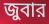
জুবার